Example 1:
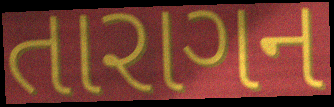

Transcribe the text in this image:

તારાગન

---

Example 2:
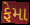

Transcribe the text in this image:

ફેમા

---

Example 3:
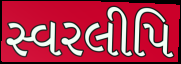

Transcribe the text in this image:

સ્વરલીપિ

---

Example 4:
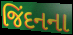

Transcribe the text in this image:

જિંદનના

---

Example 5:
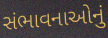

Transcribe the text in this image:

સંભાવનાઓનું